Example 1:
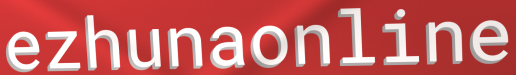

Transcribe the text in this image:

ezhunaonline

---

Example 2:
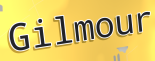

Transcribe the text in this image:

Gilmour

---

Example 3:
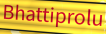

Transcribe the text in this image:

Bhattiprolu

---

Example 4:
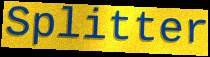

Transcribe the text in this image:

Splitter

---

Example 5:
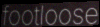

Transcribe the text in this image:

footloose